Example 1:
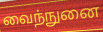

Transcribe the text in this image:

வைந்நுனை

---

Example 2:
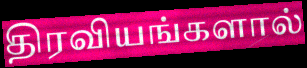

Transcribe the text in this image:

திரவியங்களால்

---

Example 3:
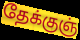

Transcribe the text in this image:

தேக்குஞ்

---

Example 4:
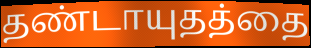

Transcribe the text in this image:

தண்டாயுதத்தை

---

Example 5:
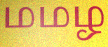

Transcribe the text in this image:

மமழ